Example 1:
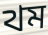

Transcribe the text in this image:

থম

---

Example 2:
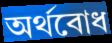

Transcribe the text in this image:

অৰ্থবোধ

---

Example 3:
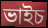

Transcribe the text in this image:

ভাইচ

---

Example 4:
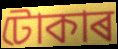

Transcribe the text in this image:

টোকাৰ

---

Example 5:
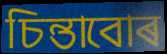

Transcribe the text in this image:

চিন্তাবোৰ